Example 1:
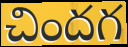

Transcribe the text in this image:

చిందగ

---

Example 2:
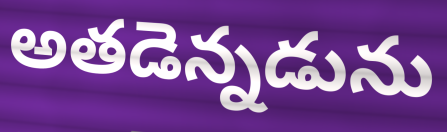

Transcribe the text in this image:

అతడెన్నడును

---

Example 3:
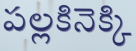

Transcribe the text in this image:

పల్లకినెక్కి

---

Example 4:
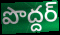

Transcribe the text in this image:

పొద్దర్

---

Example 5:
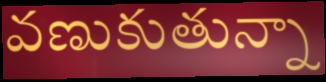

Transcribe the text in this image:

వణుకుతున్నా